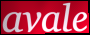
avale